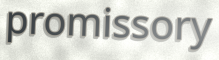
promissory